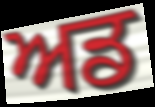
ਅਡ